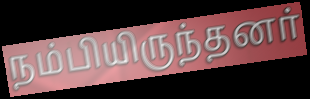
நம்பியிருந்தனர்